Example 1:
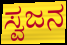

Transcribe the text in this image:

ಸ್ವಜನ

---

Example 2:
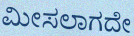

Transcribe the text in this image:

ಮೀಸಲಾಗದೇ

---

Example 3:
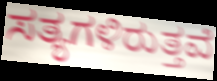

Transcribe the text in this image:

ಸತ್ಯಗಳಿರುತ್ತವೆ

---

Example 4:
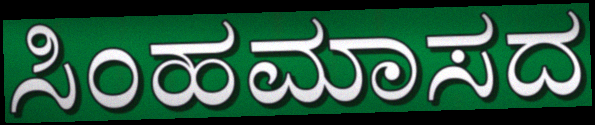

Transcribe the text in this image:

ಸಿಂಹಮಾಸದ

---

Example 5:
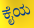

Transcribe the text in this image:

ಕೈಯ